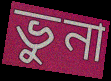
ভুনা